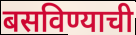
बसविण्याची